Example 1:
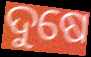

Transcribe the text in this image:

ଦୁଷେ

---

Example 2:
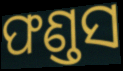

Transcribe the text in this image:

ଫଣ୍ଡସ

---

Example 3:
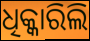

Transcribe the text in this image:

ଧିକ୍କାରିଲି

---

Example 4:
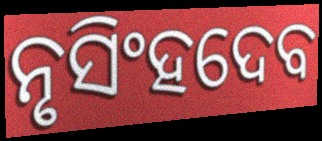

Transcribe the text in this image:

ନୃସିଂହଦେବ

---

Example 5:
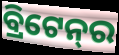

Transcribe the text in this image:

ବ୍ରିଟେନ୍‌ର